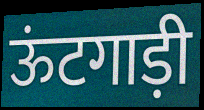
ऊंटगाड़ी